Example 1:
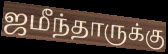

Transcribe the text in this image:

ஜமீந்தாருக்கு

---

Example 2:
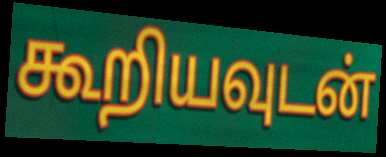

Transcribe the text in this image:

கூறியவுடன்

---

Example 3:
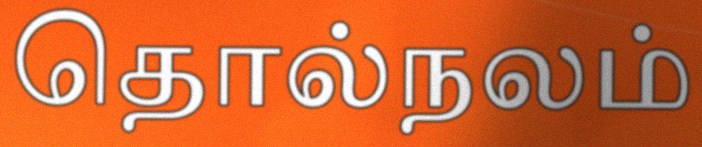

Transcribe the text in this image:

தொல்நலம்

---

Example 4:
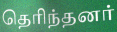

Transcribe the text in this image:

தெரிந்தனர்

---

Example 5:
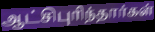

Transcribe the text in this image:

ஆட்சிபுரிந்தார்கள்